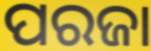
ପରଜା